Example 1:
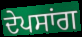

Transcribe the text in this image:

ਦੇਪਸਾਂਗ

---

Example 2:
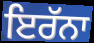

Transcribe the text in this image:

ਇਰੱਨਾ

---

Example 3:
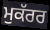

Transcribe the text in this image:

ਮੁਕੱਰਰ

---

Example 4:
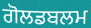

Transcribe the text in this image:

ਗੋਲਡਬਲਮ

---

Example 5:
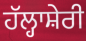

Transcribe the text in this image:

ਹੱਲ੍ਹਾਸ਼ੇਰੀ